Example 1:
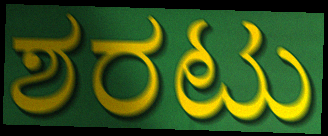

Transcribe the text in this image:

ಶರಟು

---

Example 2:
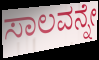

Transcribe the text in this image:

ಸಾಲವನ್ನೇ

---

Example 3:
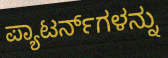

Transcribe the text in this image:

ಪ್ಯಾಟರ್ನ್‌ಗಳನ್ನು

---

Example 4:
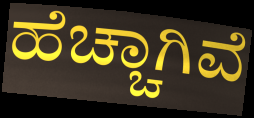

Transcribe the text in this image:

ಹೆಚ್ಚಾಗಿವೆ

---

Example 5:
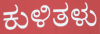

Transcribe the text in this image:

ಕುಳಿತಳು